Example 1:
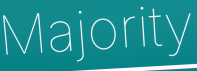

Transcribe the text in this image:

Majority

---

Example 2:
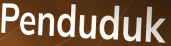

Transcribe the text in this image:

Penduduk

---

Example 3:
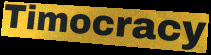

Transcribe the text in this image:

Timocracy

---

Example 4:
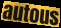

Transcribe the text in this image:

autous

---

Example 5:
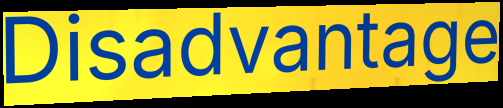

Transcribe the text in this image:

Disadvantage